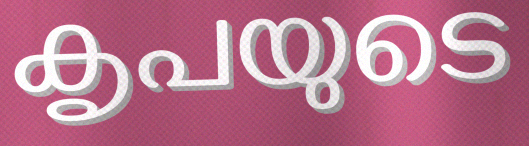
കൃപയുടെ